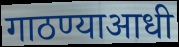
गाठण्याआधी